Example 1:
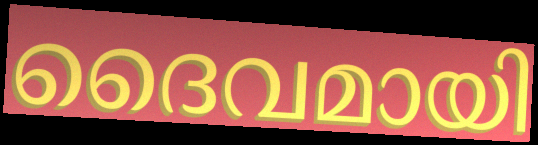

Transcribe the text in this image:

ദൈവമായി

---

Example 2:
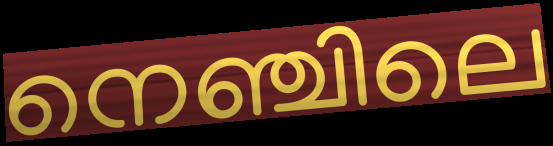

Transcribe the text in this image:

നെഞ്ചിലെ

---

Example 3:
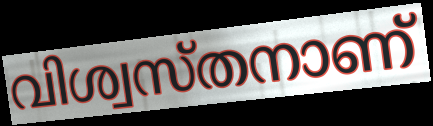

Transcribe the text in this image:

വിശ്വസ്തനാണ്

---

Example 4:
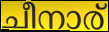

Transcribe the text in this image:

ചീനാര്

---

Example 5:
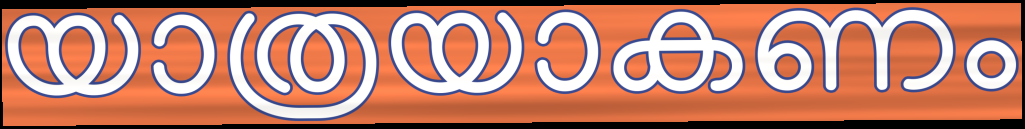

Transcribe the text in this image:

യാത്രയാകണം